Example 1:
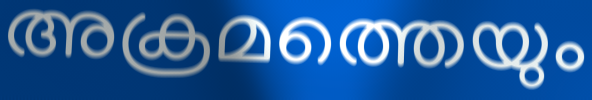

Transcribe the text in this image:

അക്രമത്തെയും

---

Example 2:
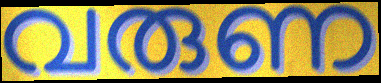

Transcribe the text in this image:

വരുണ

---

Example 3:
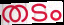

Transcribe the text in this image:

തടം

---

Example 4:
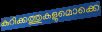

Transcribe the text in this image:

കുറിക്കത്തുകളുമൊക്കെ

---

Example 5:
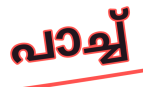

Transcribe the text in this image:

പാച്ച്